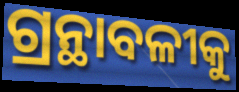
ଗ୍ରନ୍ଥାବଳୀକୁ